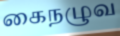
கைநழுவ